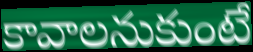
కావాలనుకుంటే